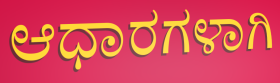
ಆಧಾರಗಳಾಗಿ